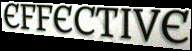
EFFECTIVE